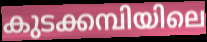
കുടക്കമ്പിയിലെ